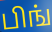
பிங்